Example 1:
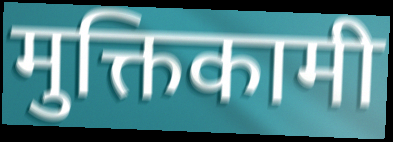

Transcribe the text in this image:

मुक्तिकामी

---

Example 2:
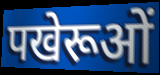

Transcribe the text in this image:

पखेरूओं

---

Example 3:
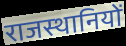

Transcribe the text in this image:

राजस्थानियों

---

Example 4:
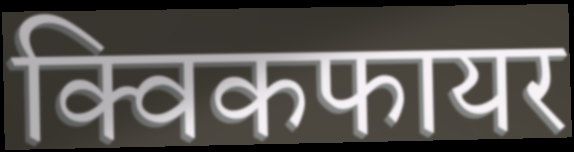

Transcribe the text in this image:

क्विकफायर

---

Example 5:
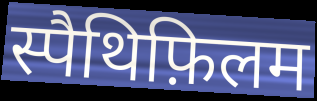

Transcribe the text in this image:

स्पैथिफ़िलम